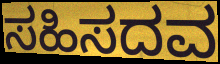
ಸಹಿಸದವ